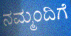
ನಮ್ಮಂದಿಗೆ